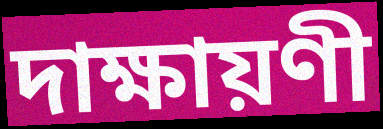
দাক্ষায়ণী